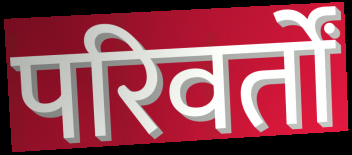
परिवर्तों